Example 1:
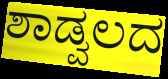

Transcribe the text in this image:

ಶಾಡ್ವಲದ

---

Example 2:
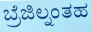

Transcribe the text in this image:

ಬ್ರೆಜಿಲ್ನಂತಹ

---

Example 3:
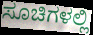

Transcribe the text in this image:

ಸೂಚಿಗಳಲ್ಲಿ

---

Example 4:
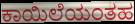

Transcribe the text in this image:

ಕಾಯಿಲೆಯಂತಹ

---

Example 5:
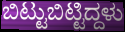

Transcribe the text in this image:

ಬಿಟ್ಟುಬಿಟ್ಟಿದ್ದಳು